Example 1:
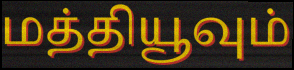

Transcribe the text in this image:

மத்தியூவும்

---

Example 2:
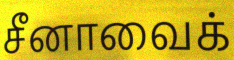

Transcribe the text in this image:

சீனாவைக்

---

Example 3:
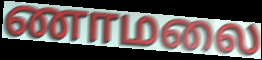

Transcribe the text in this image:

ணாமலை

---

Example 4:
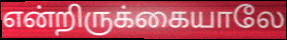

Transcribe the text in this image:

என்றிருக்கையாலே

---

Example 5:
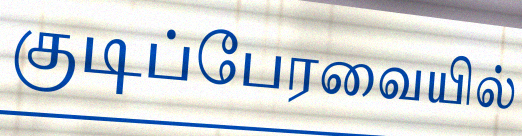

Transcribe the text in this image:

குடிப்பேரவையில்